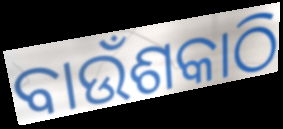
ବାଉଁଶକାଠି